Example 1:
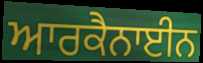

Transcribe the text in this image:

ਆਰਕੈਨਾਈਨ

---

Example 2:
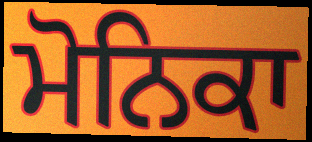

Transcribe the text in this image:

ਮੋਨਿਕਾ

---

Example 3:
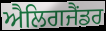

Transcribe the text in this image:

ਐਲਿਗਜੈਂਡਰ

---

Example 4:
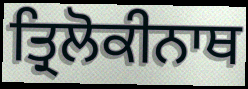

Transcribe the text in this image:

ਤ੍ਰਿਲੋਕੀਨਾਥ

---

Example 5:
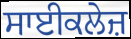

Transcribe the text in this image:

ਸਾਈਕਲੇਜ਼